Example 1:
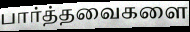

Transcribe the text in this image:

பார்த்தவைகளை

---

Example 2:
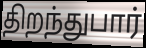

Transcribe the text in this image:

திறந்துபார்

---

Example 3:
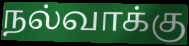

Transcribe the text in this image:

நல்வாக்கு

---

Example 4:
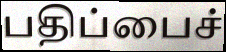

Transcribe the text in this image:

பதிப்பைச்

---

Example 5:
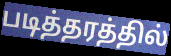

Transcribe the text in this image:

படித்தரத்தில்